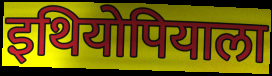
इथियोपियाला